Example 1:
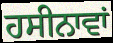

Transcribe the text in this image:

ਹਸੀਨਾਵਾਂ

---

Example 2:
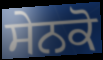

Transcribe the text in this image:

ਸੇਨਕੋ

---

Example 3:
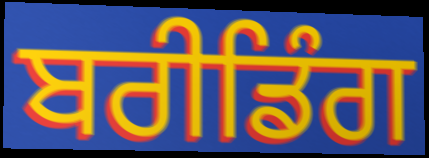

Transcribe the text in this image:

ਬਰੀਡਿੰਗ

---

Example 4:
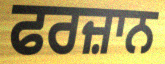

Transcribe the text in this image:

ਫਰਜ਼ਾਨ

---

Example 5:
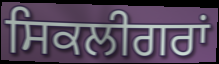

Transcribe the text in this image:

ਸਿਕਲੀਗਰਾਂ